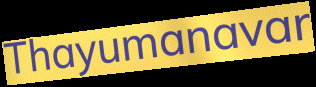
Thayumanavar